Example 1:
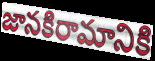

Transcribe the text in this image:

జానకిరామానికి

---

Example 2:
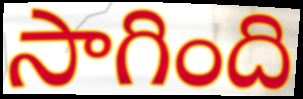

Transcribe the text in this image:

సాగింది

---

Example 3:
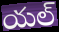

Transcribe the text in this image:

యల్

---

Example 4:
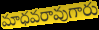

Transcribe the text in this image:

మాధవరావుగారు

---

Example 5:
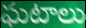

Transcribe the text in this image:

ఘటాలు